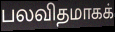
பலவிதமாகக்